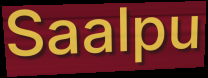
Saalpu